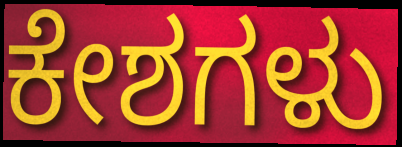
ಕೇಶಗಳು